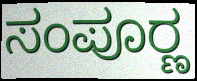
ಸಂಪೂರ್‍ಣ